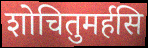
शोचितुमर्हसि